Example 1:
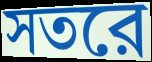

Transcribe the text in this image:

সতরে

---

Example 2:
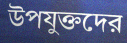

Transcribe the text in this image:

উপযুক্তদের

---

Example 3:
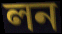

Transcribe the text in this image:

লন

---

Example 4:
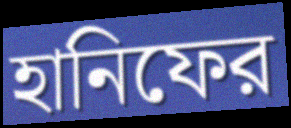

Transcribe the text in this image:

হানিফের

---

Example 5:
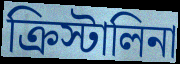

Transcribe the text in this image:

ক্রিস্টালিনা